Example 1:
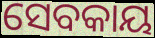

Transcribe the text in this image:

ସେବକାୟ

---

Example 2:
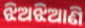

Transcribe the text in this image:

ଝିଅଝିଆଣି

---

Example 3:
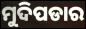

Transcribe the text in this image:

ମୁଦିପଡାର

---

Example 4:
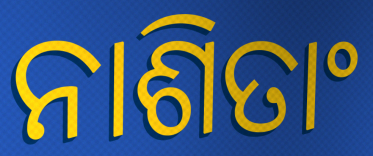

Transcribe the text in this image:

ନାଶିତାଂ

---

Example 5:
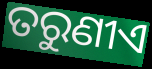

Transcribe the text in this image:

ତରୁଣୀଏ